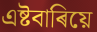
এষ্টবাৰিয়ে